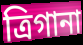
ত্রিগানা